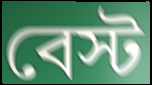
বেস্ট